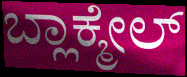
ಬ್ಲಾಕ್ಮೇಲ್